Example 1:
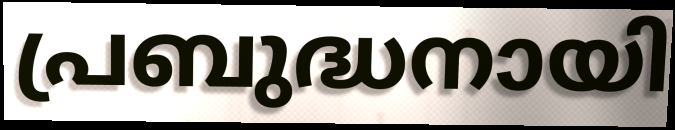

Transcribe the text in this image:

പ്രബുദ്ധനായി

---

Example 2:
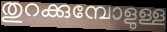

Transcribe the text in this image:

തുറക്കുമ്പോളുള്ള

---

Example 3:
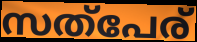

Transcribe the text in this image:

സത്പേര്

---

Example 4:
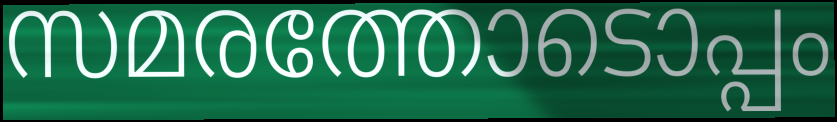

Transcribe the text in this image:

സമരത്തോടൊപ്പം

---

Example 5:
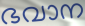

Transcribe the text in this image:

ഭവാന